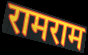
रामराम